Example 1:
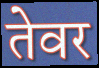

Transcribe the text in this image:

तेवर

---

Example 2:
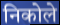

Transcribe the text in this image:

निकोले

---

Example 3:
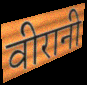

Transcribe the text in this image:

वीरानी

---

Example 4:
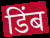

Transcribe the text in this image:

डिंब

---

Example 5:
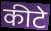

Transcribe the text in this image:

कीटे